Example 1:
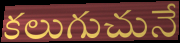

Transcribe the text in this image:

కలుగుచునే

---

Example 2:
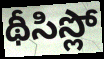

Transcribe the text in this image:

థీసిస్లో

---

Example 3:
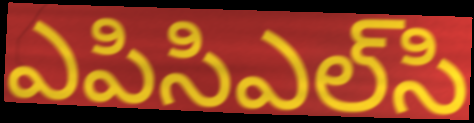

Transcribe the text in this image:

ఎపిసిఎల్‌సి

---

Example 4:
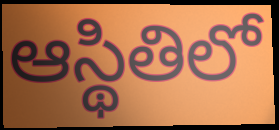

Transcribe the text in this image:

ఆస్థితిలో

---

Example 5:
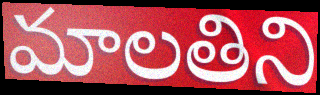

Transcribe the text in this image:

మాలతిని